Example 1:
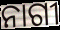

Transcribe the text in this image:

ନାଗୀ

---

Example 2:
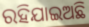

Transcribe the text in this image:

ରହିଯାଇଅଛି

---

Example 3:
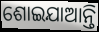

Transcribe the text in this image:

ଶୋଇଯାଆନ୍ତି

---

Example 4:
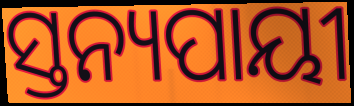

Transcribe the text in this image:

ସ୍ତନ୍ୟପାୟୀ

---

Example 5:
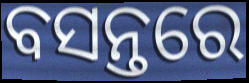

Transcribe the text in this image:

ବସନ୍ତରେ